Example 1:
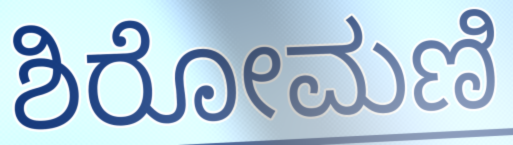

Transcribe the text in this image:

ಶಿರೋಮಣಿ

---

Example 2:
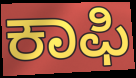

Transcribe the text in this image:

ಕಾಫಿ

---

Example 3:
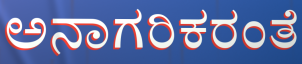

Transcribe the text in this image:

ಅನಾಗರಿಕರಂತೆ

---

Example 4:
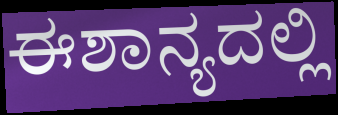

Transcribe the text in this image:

ಈಶಾನ್ಯದಲ್ಲಿ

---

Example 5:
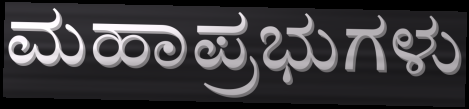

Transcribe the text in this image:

ಮಹಾಪ್ರಭುಗಳು